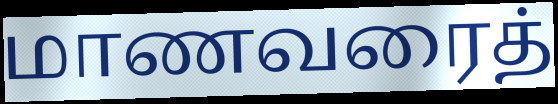
மாணவரைத்